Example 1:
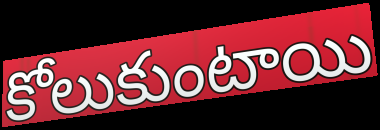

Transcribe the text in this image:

కోలుకుంటాయి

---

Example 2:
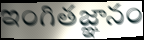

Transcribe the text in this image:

ఇంగితజ్ఞానం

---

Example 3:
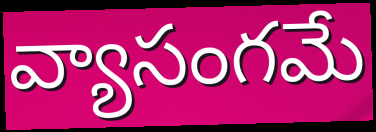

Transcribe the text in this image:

వ్యాసంగమే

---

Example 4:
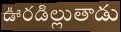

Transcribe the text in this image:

ఊరడిల్లుతాడు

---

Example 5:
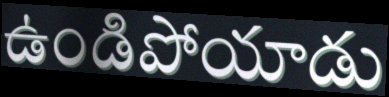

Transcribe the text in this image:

ఉండిపోయాడు